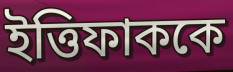
ইত্তিফাককে